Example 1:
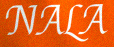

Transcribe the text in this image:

NALA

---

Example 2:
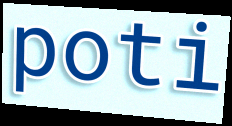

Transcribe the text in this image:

poti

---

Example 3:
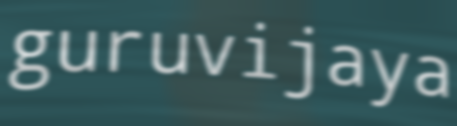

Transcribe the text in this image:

guruvijaya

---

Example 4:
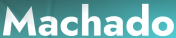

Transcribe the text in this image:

Machado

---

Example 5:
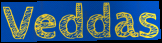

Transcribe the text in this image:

Veddas